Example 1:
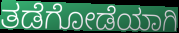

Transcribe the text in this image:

ತಡೆಗೋಡೆಯಾಗಿ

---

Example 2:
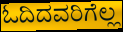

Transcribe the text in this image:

ಓದಿದವರಿಗೆಲ್ಲ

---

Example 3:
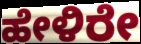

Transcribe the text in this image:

ಹೇಳಿರೇ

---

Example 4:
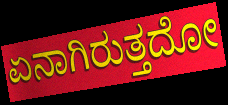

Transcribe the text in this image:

ಏನಾಗಿರುತ್ತದೋ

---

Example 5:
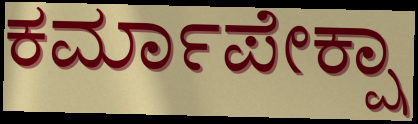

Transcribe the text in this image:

ಕರ್ಮಾಪೇಕ್ಷಾ